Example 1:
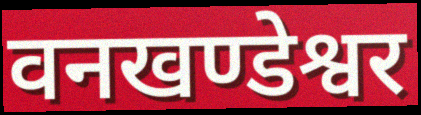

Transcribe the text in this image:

वनखण्डेश्वर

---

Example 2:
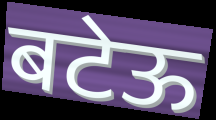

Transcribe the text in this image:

बटेऊ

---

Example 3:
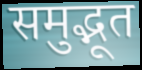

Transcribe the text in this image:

समुद्भूत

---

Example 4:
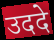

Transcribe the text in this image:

उददे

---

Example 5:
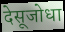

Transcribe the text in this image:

देसूजोधा